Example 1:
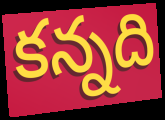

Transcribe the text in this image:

కన్నది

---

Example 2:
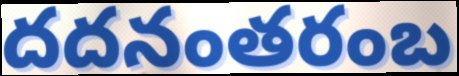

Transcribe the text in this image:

దదనంతరంబ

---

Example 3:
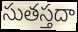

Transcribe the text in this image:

సుతస్తదా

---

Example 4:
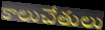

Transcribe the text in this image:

కాలుచేతులు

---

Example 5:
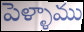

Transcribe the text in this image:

పెళ్ళాము